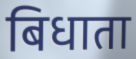
बिधाता